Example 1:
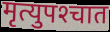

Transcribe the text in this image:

मृत्युपश्चात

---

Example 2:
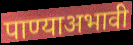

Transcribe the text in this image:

पाण्याअभावी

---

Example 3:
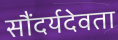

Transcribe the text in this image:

सौंदर्यदेवता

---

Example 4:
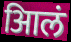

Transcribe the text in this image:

आिलं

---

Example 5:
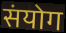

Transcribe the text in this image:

संयोग